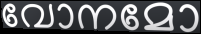
വോനമോ